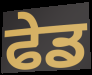
ਫੇਡ